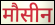
मौसीन